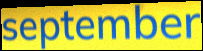
september